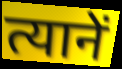
त्यानें